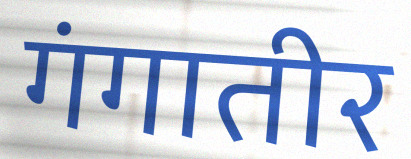
गंगातीर